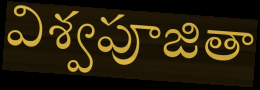
విశ్వపూజితా